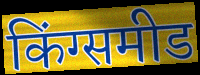
किंग्समीड